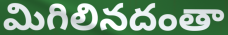
మిగిలినదంతా